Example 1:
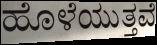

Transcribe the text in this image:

ಹೊಳೆಯುತ್ತವೆ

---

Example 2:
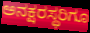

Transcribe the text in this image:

ಅನಕ್ಷರಸ್ಥರಿಗೂ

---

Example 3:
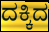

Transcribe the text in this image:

ದಕ್ಕಿದ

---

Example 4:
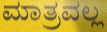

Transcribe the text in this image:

ಮಾತ್ರವಲ್ಲ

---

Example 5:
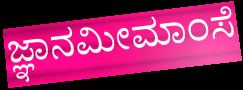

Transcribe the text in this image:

ಜ್ಞಾನಮೀಮಾಂಸೆ